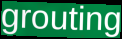
grouting